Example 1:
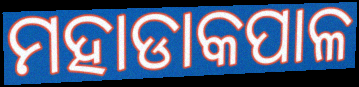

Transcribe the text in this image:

ମହାଡାକପାଳ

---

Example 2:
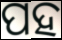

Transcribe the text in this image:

ପହ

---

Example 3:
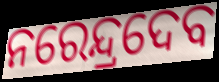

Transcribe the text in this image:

ନରେନ୍ଦ୍ରଦେବ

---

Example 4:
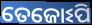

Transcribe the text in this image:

ତେଜୋଽପି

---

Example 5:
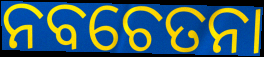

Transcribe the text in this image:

ନବଚେତନା